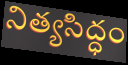
నిత్యసిద్ధం